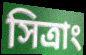
সিত্রাং